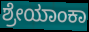
ಶ್ರೇಯಾಂಕಾ